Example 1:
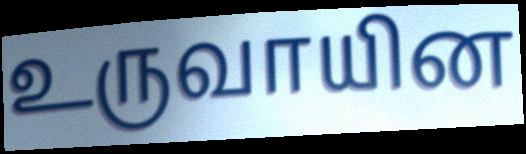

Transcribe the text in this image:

உருவாயின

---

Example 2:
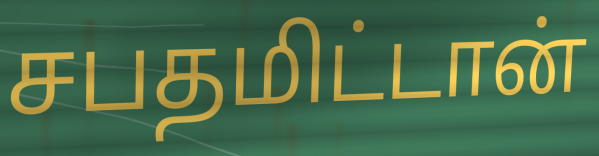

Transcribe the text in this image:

சபதமிட்டான்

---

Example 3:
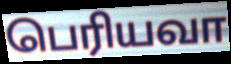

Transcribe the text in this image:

பெரியவா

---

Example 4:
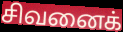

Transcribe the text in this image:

சிவனைக்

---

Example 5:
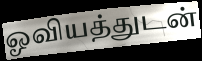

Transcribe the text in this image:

ஓவியத்துடன்